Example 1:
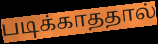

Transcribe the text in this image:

படிக்காததால்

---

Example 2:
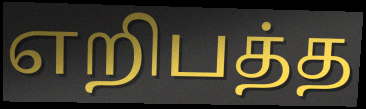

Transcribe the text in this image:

எறிபத்த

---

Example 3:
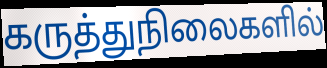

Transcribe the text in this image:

கருத்துநிலைகளில்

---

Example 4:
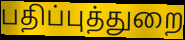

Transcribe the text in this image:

பதிப்புத்துறை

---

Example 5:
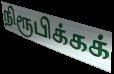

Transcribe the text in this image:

நிரூபிக்கக்